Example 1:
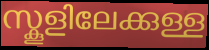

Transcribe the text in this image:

സ്കൂളിലേക്കുള്ള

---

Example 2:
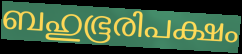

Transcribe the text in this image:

ബഹുഭൂരിപക്ഷം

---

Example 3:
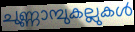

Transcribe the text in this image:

ചുണ്ണാമ്പുകല്ലുകൾ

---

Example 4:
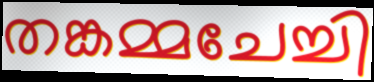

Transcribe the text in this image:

തങ്കമ്മചേച്ചി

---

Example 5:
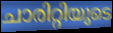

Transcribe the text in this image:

ചാരിറ്റിയുടെ